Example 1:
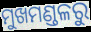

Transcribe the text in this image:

ମୁଖମଣ୍ଡଳରୁ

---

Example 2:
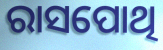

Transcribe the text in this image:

ରାସପୋଥି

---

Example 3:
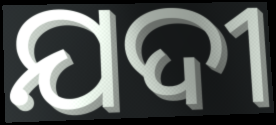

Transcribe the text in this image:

ଯଦୀ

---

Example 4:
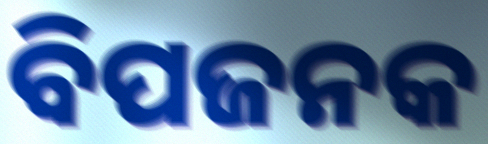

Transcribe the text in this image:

ବିପଜନକ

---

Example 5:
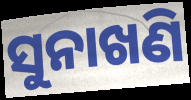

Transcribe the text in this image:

ସୁନାଖଣି